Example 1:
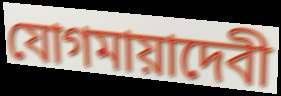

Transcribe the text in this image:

যোগমায়াদেবী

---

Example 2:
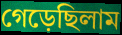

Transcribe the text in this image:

গেড়েছিলাম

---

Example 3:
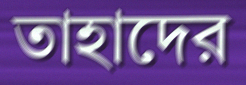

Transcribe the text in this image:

তাহাদের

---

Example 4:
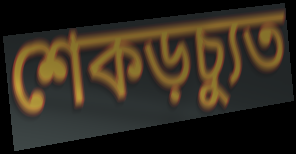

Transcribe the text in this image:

শেকড়চ্যুত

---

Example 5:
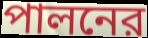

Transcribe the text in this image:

পালনের